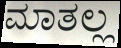
ಮಾತಲ್ಲ